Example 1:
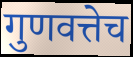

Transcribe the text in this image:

गुणवत्तेच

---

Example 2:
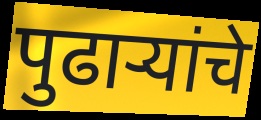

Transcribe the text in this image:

पुढाऱ्यांचे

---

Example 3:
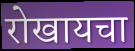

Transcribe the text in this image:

रोखायचा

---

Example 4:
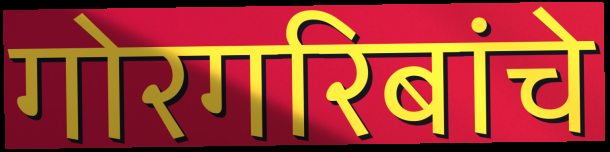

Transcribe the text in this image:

गोरगरिबांचे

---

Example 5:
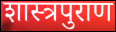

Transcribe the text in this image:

शास्त्रपुराण